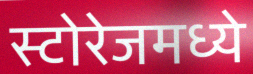
स्टोरेजमध्ये